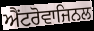
ਐਂਟਰੋਵਾਜਿਨਲ